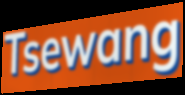
Tsewang